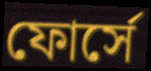
ফোর্সে